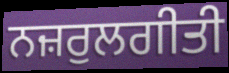
ਨਜ਼ਰੁਲਗੀਤੀ